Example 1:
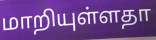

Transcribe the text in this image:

மாறியுள்ளதா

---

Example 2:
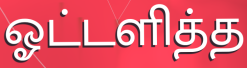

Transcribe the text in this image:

ஓட்டளித்த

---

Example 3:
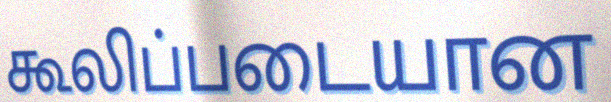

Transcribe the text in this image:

கூலிப்படையான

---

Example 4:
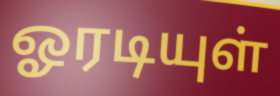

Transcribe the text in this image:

ஓரடியுள்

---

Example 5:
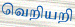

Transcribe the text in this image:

வெறியறி